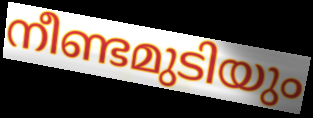
നീണ്ടമുടിയും